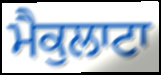
ਮੈਕੁਲਾਟਾ